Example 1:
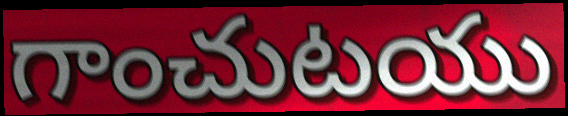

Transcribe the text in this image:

గాంచుటయు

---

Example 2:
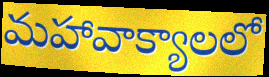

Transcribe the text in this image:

మహావాక్యాలలో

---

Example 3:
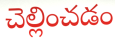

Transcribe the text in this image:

చెల్లించడం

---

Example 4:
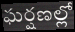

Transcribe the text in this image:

ఘర్షణల్లో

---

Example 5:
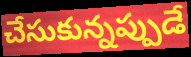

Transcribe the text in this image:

చేసుకున్నప్పుడే